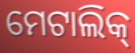
ମେଟାଲିକ୍